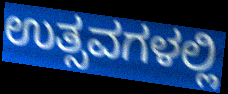
ಉತ್ಸವಗಳಲ್ಲಿ